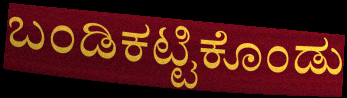
ಬಂಡಿಕಟ್ಟಿಕೊಂಡು